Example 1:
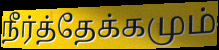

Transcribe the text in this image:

நீர்த்தேக்கமும்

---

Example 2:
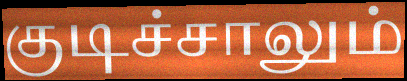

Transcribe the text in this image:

குடிச்சாலும்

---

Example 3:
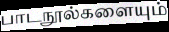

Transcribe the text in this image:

பாடநூல்களையும்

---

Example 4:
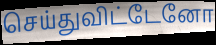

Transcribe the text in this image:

செய்துவிட்டேனோ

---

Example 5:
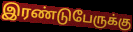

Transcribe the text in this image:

இரண்டுபேருக்கு